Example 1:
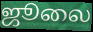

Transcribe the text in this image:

ஜூலை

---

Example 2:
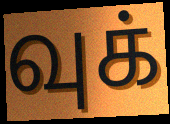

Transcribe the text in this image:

வுக்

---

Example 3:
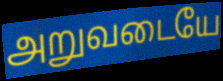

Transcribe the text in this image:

அறுவடையே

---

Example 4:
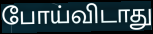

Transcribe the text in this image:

போய்விடாது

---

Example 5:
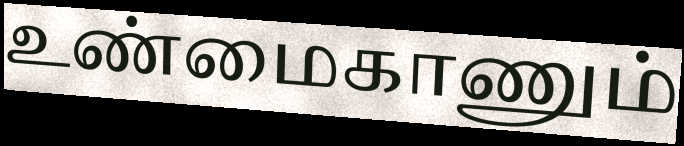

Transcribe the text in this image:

உண்மைகாணும்